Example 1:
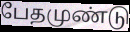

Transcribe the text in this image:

பேதமுண்டு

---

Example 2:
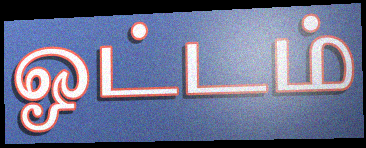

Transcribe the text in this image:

ஓட்டம்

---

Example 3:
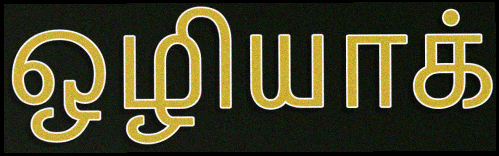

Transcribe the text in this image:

ஒழியாக்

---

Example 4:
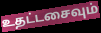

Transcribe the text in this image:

உதட்டசைவும்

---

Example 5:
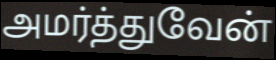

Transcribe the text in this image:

அமர்த்துவேன்